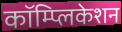
कॉम्प्लिकेशन